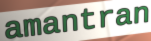
amantran